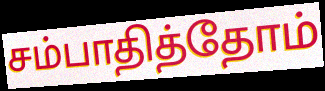
சம்பாதித்தோம்